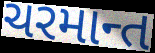
ચરમાન્ત